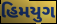
હિમયુગ